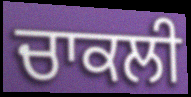
ਚਾਕਲੀ